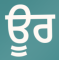
ਊਰ